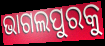
ଭାଗଲପୁରକୁ